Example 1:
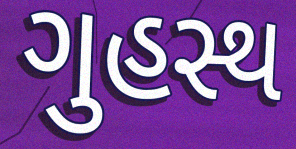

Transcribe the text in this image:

ગુહસ્થ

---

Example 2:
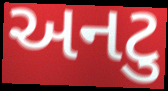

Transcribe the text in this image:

અનટુ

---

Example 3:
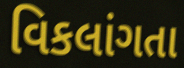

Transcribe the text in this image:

વિકલાંગતા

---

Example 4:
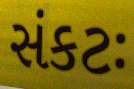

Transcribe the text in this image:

સંકટઃ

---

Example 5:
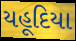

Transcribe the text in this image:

યહૂદિયા